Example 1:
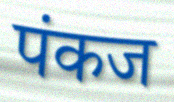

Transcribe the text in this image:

पंकज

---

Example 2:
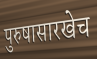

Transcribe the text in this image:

पुरुषासारखेच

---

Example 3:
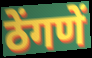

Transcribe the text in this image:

ठेंगणें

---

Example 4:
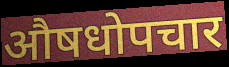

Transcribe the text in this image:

औषधोपचार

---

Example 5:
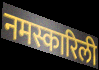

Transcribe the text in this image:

नमस्कारिली